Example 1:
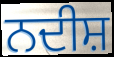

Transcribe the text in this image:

ਨਦੀਸ਼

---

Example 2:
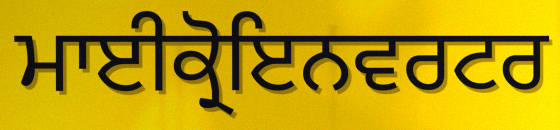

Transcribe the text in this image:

ਮਾਈਕ੍ਰੋਇਨਵਰਟਰ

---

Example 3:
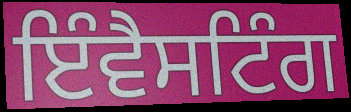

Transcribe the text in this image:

ਇੰਵੈਸਟਿੰਗ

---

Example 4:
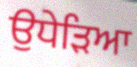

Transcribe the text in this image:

ਉਧੇੜਿਆ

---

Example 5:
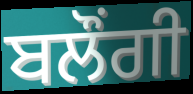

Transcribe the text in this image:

ਬਲੌਂਗੀ